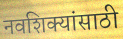
नवशिक्यांसाठी